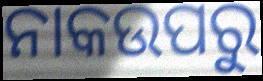
ନାକଉପରୁ